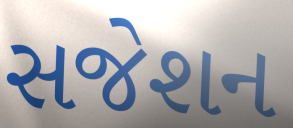
સજેશન